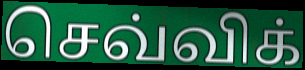
செவ்விக்